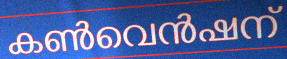
കൺവെൻഷന്